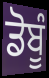
ਡੋਬੂੰ